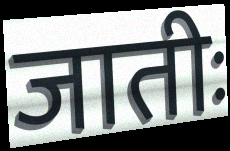
जातीः